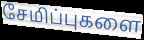
சேமிப்புகளை